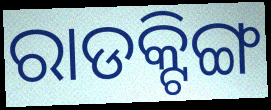
ରାଡକ୍ଟିଙ୍ଗ